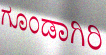
ಗೂಂಡಾಗಿರಿ